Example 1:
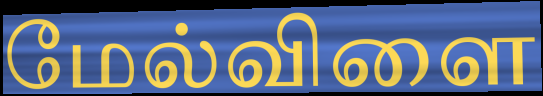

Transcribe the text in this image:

மேல்விளை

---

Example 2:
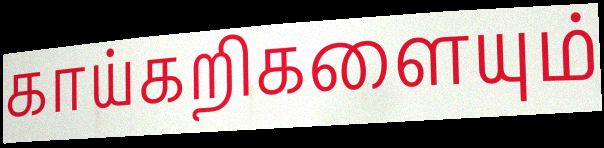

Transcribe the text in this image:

காய்கறிகளையும்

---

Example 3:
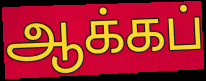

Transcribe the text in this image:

ஆக்கப்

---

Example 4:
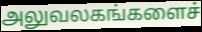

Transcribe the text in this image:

அலுவலகங்களைச்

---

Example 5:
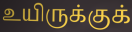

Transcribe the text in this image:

உயிருக்குக்